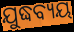
ଯୁଦ୍ଧବ୍ୟୟ